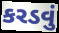
કરડવું